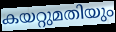
കയറ്റുമതിയും